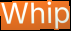
Whip